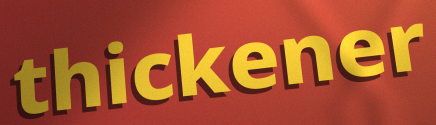
thickener